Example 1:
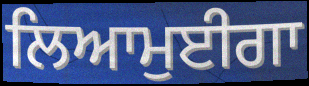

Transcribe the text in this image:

ਲਿਆਮੁਈਗਾ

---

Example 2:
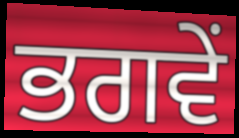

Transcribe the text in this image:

ਭਗਵੇਂ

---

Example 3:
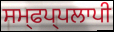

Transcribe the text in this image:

ਸਮ੍ਫਪ੍ਪਲਾਪੀ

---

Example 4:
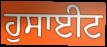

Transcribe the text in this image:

ਹੁਸਾਈਟ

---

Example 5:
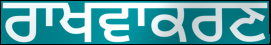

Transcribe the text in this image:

ਰਾਖਵਾਕਰਣ